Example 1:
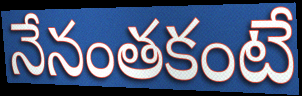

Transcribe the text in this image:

నేనంతకంటే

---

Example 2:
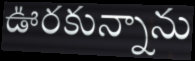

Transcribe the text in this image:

ఊరకున్నాను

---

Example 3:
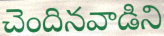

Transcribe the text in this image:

చెందినవాడిని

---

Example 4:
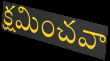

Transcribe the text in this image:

క్షమించవా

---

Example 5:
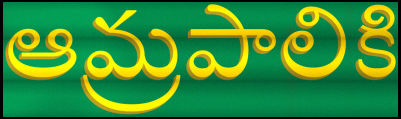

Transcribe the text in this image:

ఆమ్రపాలికి